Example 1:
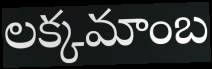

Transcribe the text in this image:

లక్కమాంబ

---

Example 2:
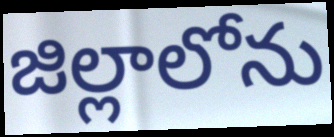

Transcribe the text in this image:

జిల్లాలోను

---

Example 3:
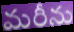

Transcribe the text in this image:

మరీను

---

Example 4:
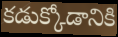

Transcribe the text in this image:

కడుక్కోడానికి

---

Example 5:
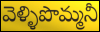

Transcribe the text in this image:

వెళ్ళిపొమ్మనీ